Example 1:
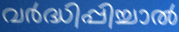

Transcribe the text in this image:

വർദ്ധിപ്പിച്ചാൽ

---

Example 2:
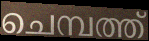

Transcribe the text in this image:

ചെമ്പത്ത്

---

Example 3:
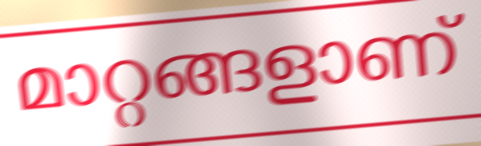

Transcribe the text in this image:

മാറ്റങ്ങളാണ്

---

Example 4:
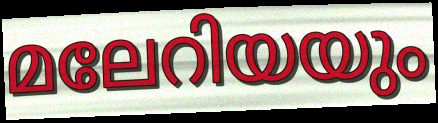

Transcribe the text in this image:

മലേറിയയും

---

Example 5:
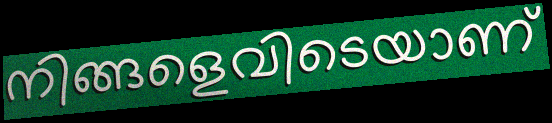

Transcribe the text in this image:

നിങ്ങളെവിടെയാണ്